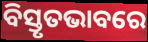
ବିସ୍ତୃତଭାବରେ